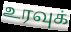
உரவுக்